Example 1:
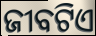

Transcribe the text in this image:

ଜୀବଟିଏ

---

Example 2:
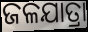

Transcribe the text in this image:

ଜଳଯାତ୍ରା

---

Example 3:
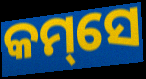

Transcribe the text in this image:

କମ୍‌ସେ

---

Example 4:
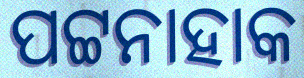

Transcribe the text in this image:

ପଟ୍ଟନାହାକ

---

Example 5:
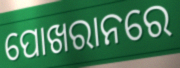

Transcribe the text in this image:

ପୋଖରାନରେ